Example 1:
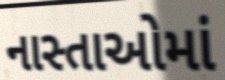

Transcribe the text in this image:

નાસ્તાઓમાં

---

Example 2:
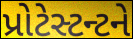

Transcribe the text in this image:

પ્રોટેસ્ટન્ટને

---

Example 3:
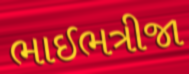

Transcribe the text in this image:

ભાઈભત્રીજા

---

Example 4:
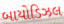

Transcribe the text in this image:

બાયોડિઝલ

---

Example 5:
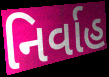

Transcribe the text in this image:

નિર્વાહ